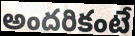
అందరికంటే